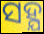
ସହ୍ଯ